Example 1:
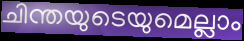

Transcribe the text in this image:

ചിന്തയുടെയുമെല്ലാം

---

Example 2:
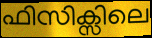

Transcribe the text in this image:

ഫിസിക്സിലെ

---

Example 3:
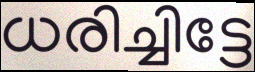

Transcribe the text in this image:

ധരിച്ചിട്ടേ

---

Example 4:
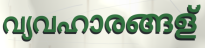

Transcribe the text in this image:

വ്യവഹാരങ്ങള്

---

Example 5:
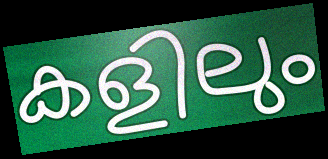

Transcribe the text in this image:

കളിലും